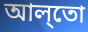
আল্‌তো